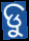
ଡୁ